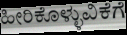
ಹೀರಿಕೊಳ್ಳುವಿಕೆಗೆ